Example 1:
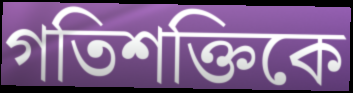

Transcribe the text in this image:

গতিশক্তিকে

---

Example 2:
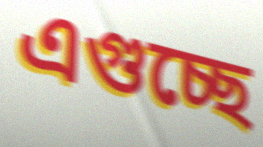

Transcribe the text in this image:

এগুচ্ছে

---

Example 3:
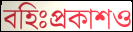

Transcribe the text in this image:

বহিঃপ্রকাশও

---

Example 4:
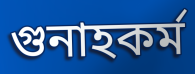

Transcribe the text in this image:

গুনাহকর্ম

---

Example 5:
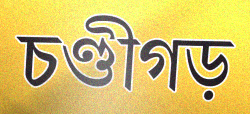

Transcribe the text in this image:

চণ্ডীগড়